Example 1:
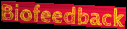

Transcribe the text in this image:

Biofeedback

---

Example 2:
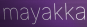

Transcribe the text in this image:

mayakka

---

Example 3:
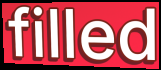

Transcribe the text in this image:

filled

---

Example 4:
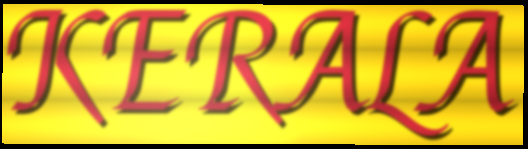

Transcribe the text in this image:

KERALA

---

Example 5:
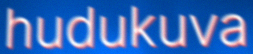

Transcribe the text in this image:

hudukuva